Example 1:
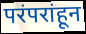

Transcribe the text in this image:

परंपरांहून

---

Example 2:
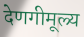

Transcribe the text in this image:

देणगीमूल्य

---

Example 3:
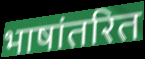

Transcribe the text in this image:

भाषांतरित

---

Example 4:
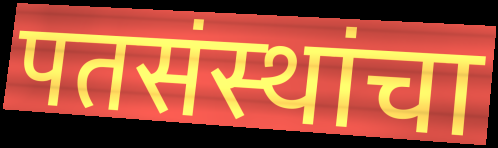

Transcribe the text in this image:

पतसंस्थांचा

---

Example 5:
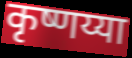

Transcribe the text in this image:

कृष्णय्या